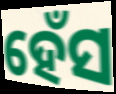
ହେଁସ